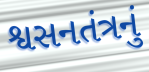
શ્વસનતંત્રનું